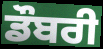
ਡੌਬਰੀ